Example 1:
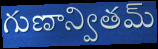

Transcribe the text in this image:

గుణాన్వితమ్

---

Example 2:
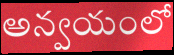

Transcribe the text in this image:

అన్వయంలో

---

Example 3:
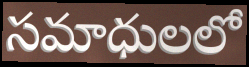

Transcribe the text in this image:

సమాధులలో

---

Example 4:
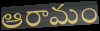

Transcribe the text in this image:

ఆరామం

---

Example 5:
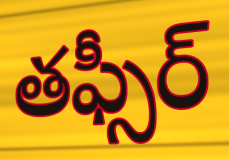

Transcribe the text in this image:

తఫ్సీర్